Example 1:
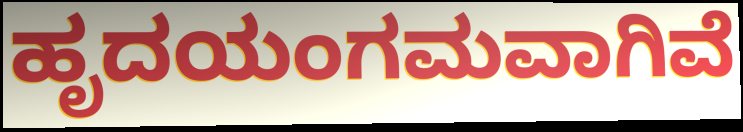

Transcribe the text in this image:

ಹೃದಯಂಗಮವಾಗಿವೆ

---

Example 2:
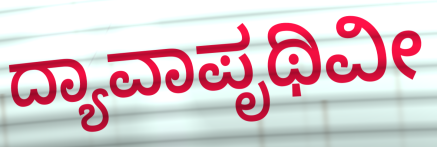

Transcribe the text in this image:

ದ್ಯಾವಾಪೃಥಿವೀ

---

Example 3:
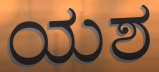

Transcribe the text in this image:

ಯಶ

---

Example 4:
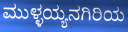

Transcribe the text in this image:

ಮುಳ್ಳಯ್ಯನಗಿರಿಯ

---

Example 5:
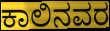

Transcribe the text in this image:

ಕಾಲಿನವರ